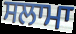
ਸਲਾਮਾ